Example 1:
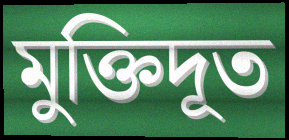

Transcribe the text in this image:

মুক্তিদূত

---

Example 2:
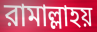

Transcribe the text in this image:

রামাল্লাহয়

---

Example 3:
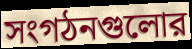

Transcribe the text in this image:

সংগঠনগুলোর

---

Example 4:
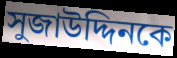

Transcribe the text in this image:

সুজাউদ্দিনকে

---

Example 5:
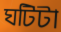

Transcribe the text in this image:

ঘটিটা